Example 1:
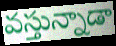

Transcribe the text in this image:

వస్తున్నాడా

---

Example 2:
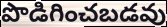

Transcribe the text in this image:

పొడిగించబడవు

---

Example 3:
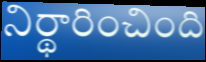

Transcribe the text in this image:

నిర్థారించింది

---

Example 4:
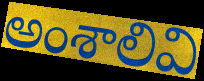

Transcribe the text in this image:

అంశాలివి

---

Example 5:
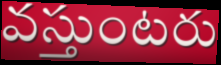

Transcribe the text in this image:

వస్తుంటరు